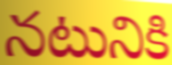
నటునికి